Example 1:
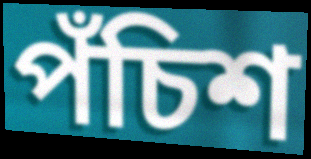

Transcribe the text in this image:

পঁচিশ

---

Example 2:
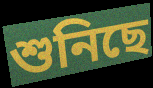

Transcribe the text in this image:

শুনিছে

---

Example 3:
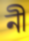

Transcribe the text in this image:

নী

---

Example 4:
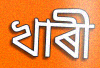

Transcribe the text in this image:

খাৰী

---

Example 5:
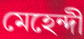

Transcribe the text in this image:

মেহেন্দী